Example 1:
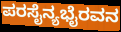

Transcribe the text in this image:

ಪರಸೈನ್ಯಭೈರವನ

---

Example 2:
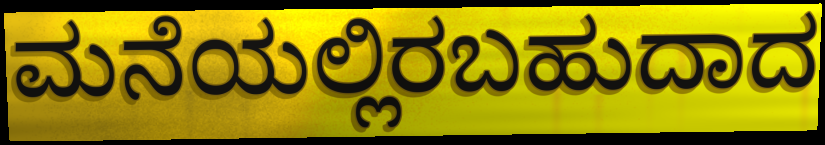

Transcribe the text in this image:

ಮನೆಯಲ್ಲಿರಬಹುದಾದ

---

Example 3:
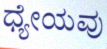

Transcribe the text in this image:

ಧ್ಯೇಯವು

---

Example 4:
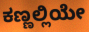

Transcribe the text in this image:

ಕಣ್ಣಲ್ಲಿಯೇ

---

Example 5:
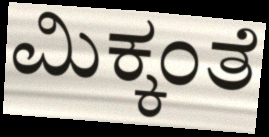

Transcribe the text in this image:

ಮಿಕ್ಕಂತೆ